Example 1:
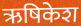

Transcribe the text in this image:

ऋषिकेश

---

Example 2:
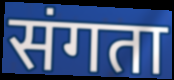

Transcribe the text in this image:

संगता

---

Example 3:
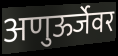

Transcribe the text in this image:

अणुऊर्जेवर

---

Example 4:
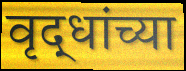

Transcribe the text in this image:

वृद्धांच्या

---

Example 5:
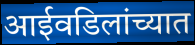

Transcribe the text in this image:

आईवडिलांच्यात